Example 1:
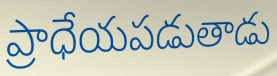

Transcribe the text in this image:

ప్రాధేయపడుతాడు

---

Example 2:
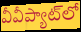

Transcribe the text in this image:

వీవీప్యాట్‌లో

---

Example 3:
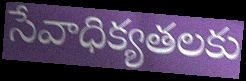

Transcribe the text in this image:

సేవాధిక్యతలకు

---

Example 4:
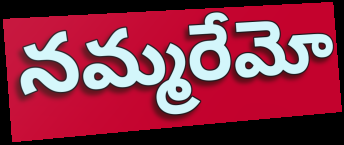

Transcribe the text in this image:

నమ్మరేమో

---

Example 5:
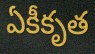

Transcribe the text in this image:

ఏకీకృత